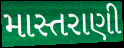
માસ્તરાણી